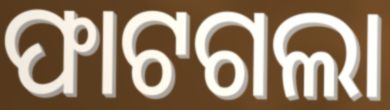
ଫାଟଗଲା